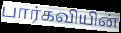
பார்கவியின்